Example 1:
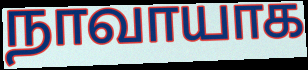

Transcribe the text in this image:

நாவாயாக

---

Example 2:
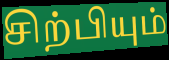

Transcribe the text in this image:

சிற்பியும்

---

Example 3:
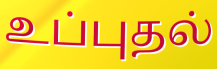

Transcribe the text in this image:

உப்புதல்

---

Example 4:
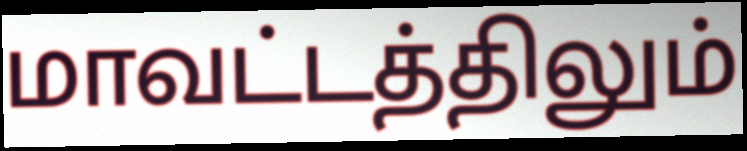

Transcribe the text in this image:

மாவட்டத்திலும்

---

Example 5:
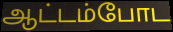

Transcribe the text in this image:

ஆட்டம்போட